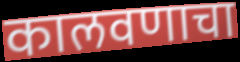
कालवणाचा